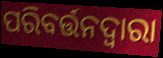
ପରିବର୍ତ୍ତନଦ୍ୱାରା